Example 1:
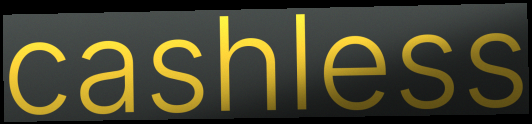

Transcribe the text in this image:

cashless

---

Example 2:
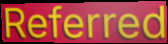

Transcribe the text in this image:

Referred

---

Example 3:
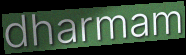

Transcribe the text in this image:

dharmam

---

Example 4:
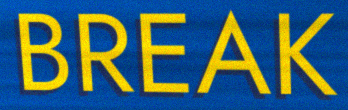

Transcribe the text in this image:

BREAK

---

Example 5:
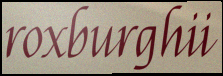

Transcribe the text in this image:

roxburghii